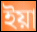
ইয়া